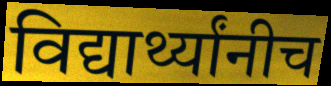
विद्यार्थ्यांनीच